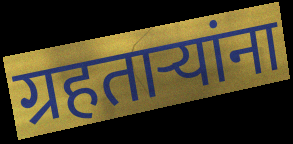
ग्रहताऱ्यांना